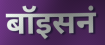
बॉइसनं